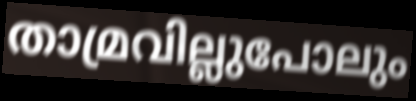
താമ്രവില്ലുപോലും